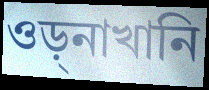
ওড়্নাখানি